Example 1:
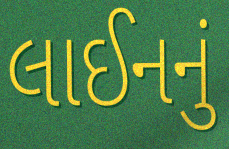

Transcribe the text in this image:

લાઈનનું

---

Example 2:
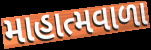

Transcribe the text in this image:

માહાત્મવાળા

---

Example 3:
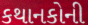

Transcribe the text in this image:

કથાનકોની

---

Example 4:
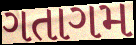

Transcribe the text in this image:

ગતાગમ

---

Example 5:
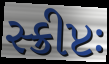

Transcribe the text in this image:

સ્ક્રીપ્ટઃ